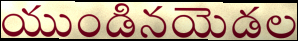
యుండినయెడల